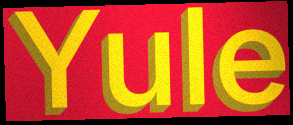
Yule